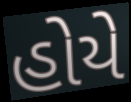
હોયે